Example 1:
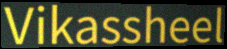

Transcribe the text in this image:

Vikassheel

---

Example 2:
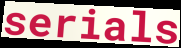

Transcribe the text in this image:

serials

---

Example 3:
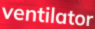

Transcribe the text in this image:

ventilator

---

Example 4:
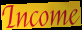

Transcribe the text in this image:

Income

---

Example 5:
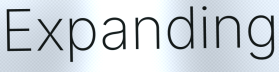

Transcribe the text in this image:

Expanding